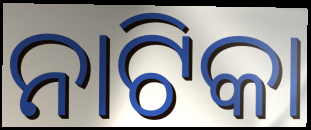
ନାଟିକା